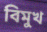
বিমুখ